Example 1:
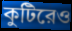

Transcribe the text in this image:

কুটিরেও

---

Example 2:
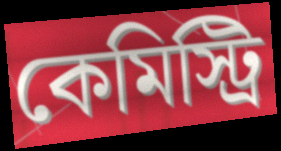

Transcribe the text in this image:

কেমিস্ট্রি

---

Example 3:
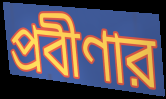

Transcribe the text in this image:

প্রবীণার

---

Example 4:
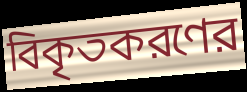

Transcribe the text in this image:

বিকৃতকরণের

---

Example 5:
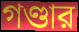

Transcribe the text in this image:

গণ্ডার